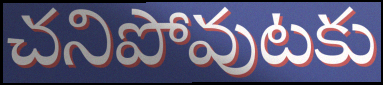
చనిపోవుటకు